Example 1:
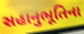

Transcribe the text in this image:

સહાનુભૂતિના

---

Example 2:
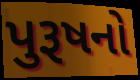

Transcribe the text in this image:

પુરૂષનો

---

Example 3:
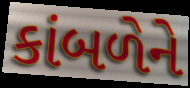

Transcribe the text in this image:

કાંબળેને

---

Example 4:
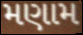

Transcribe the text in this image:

મણામ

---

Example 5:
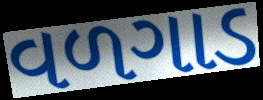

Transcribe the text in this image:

વળગાડ